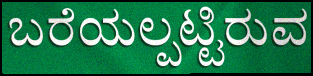
ಬರೆಯಲ್ಪಟ್ಟಿರುವ